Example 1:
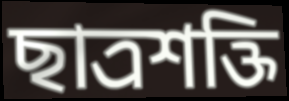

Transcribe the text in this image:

ছাত্ৰশক্তি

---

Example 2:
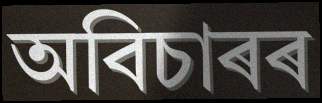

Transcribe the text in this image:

অবিচাৰৰ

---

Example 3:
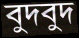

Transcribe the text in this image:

বুদবুদ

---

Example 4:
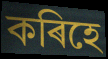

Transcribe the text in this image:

কৰিহে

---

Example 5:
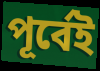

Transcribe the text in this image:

পূৰ্বেই